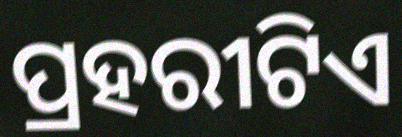
ପ୍ରହରୀଟିଏ